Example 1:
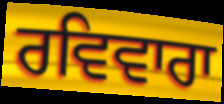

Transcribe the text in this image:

ਰਵਿਵਾਰਾ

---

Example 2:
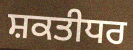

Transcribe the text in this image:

ਸ਼ਕਤੀਧਰ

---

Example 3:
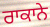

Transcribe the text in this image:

ਰਾਕਾਨੇ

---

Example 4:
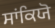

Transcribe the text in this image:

ਸਾਂਕਿਯੋ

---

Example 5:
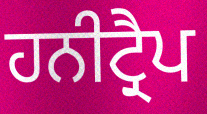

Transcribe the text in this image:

ਹਨੀਟ੍ਰੈਪ